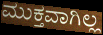
ಮುಕ್ತವಾಗಿಲ್ಲ